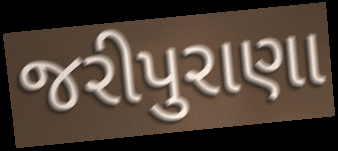
જરીપુરાણા